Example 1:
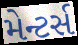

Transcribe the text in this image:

મેન્ટર્સ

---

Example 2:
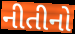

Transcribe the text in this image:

નીતીનો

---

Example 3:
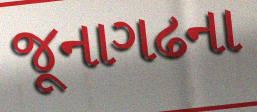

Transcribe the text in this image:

જૂનાગઢના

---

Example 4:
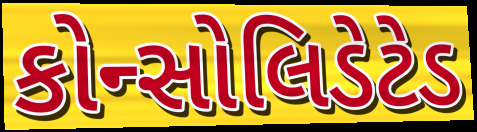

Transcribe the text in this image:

કોન્સોલિડેટેડ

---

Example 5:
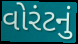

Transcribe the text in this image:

વોરંટનું